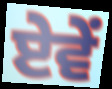
ਏਵੇਂ